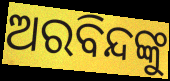
ଅରବିନ୍ଦଙ୍କୁ